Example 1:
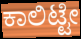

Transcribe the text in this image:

ಕಾಲಿಟ್ಟೇ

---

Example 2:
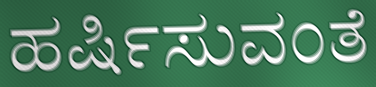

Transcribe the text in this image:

ಹರ್ಷಿಸುವಂತೆ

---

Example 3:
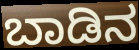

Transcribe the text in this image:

ಬಾಡಿನ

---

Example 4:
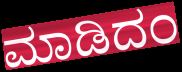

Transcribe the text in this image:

ಮಾಡಿದಂ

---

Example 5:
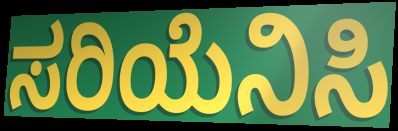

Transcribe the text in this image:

ಸರಿಯೆನಿಸಿ